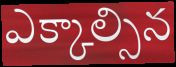
ఎక్కాల్సిన